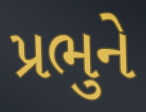
પ્રભુને